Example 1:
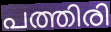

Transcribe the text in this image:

പത്തിരി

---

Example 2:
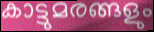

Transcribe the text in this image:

കാട്ടുമരങ്ങളും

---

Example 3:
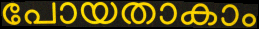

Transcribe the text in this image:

പോയതാകാം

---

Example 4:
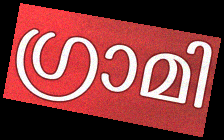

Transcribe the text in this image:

ഗ്രാമി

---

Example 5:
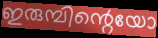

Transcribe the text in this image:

ഇരുമ്പിന്റെയോ